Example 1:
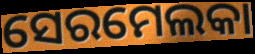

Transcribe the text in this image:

ସେରମେଲକା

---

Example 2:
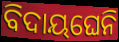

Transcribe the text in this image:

ବିଦାୟଘେନି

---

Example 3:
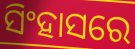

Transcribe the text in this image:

ସିଂହାସରେ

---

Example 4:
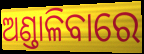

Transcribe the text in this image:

ଅଣ୍ଡାଳିବାରେ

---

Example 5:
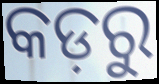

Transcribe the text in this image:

କଡ଼ରୁ